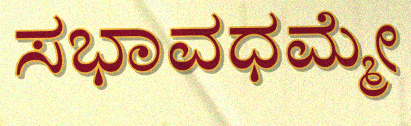
ಸಭಾವಧಮ್ಮೇ